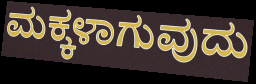
ಮಕ್ಕಳಾಗುವುದು